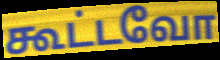
கூட்டவோ